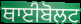
ਥਾਈਬੋਲਟ